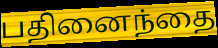
பதினைந்தை